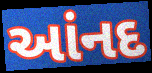
આંનદ